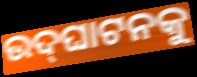
ଉଦ୍‌ଘାଟନକୁ